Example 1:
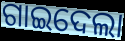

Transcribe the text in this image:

ଗାଇଦେଲା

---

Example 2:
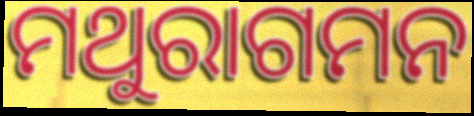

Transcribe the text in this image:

ମଥୁରାଗମନ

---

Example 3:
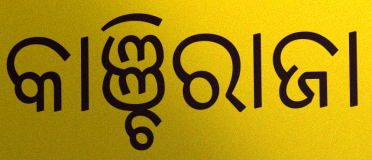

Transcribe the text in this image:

କାଞ୍ଚିରାଜା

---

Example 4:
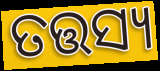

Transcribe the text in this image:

ତତ୍ତସ୍ୟ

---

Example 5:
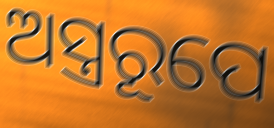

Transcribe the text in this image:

ଅସ୍ତ୍ରରୂପେ